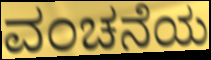
ವಂಚನೆಯ